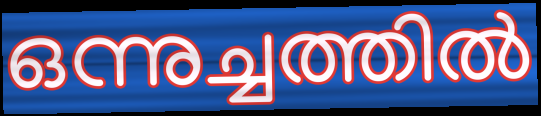
ഒന്നുച്ചത്തിൽ